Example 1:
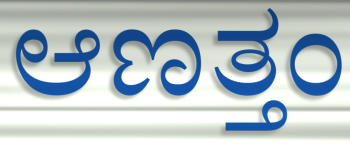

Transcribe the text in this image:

ಆಣತ್ತಂ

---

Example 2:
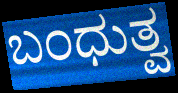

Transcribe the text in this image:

ಬಂಧುತ್ವ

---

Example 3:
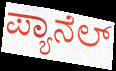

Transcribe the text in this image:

ಪ್ಯಾನೆಲ್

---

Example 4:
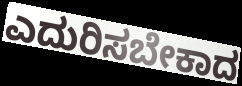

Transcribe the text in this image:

ಎದುರಿಸಬೇಕಾದ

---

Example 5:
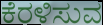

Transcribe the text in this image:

ಕೆರಳಿಸುವ